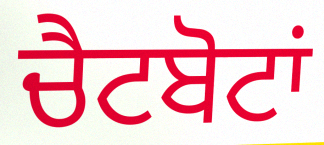
ਚੈਟਬੋਟਾਂ